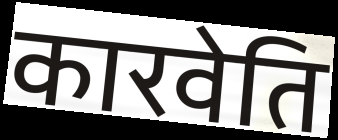
कारवेति